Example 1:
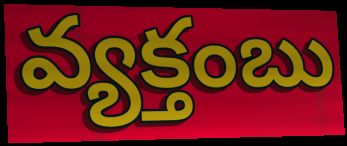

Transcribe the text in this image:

వ్యక్తంబు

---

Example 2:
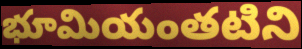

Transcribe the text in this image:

భూమియంతటిని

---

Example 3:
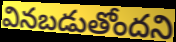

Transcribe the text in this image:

వినబడుతోందని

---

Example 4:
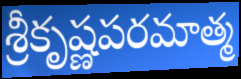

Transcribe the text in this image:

శ్రీకృష్ణపరమాత్మ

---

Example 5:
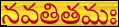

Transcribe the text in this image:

నవతితమః